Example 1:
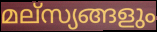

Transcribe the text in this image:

മല്സ്യങ്ങളും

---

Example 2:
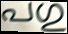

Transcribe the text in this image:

പഗു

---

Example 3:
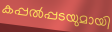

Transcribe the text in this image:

കപ്പൽപ്പടയുമായി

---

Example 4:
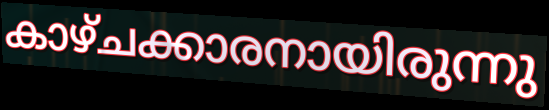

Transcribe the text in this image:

കാഴ്ചക്കാരനായിരുന്നു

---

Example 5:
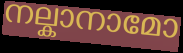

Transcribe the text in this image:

നല്കാനാമോ